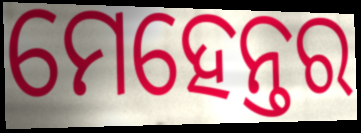
ମେହେନ୍ତର